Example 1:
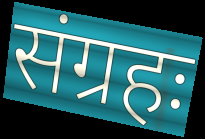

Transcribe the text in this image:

संग्रहः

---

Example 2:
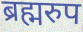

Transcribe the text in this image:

ब्रह्मरुप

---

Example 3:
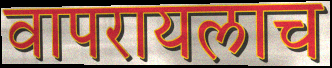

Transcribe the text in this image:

वापरायलाच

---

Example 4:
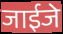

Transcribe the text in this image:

जाईजे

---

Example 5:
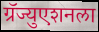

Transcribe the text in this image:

ग्रॅज्युएशनला